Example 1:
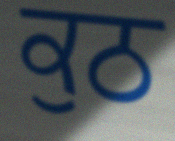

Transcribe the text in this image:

ਕੁਠ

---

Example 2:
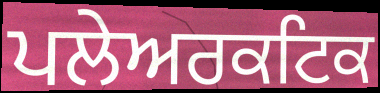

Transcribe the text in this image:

ਪਲੇਅਰਕਟਿਕ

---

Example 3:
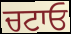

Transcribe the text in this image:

ਚਟਾਓ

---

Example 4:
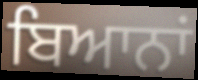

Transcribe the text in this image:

ਬਿਆਨਾਂ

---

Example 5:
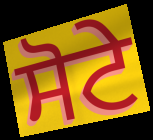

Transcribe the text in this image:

ਸੋਟੇ